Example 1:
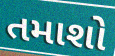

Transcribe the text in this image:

તમાશો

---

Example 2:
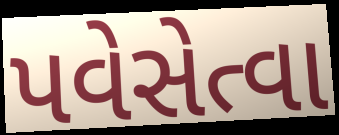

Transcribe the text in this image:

પવેસેત્વા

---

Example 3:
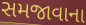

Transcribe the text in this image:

સમજાવાના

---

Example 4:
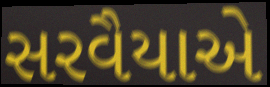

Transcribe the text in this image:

સરવૈયાએ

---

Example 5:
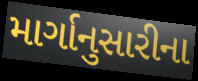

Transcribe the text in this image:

માર્ગાનુસારીના